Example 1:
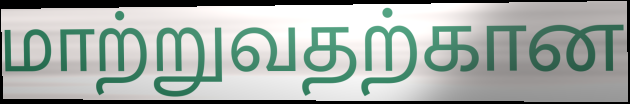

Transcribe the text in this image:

மாற்றுவதற்கான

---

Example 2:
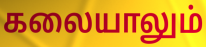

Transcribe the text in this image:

கலையாலும்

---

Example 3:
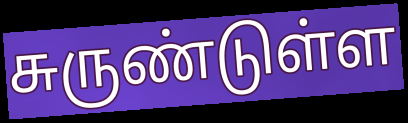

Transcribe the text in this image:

சுருண்டுள்ள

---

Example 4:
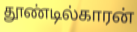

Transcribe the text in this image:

தூண்டில்காரன்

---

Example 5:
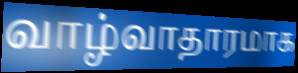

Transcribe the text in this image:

வாழ்வாதாரமாக